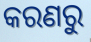
କରଣରୁ